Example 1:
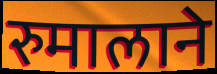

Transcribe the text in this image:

रुमालाने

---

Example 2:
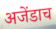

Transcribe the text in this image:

अजेंडाच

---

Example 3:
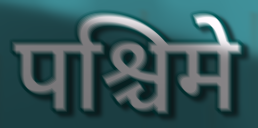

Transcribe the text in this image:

पश्चिमे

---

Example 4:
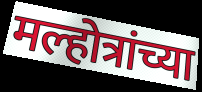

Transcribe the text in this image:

मल्होत्रांच्या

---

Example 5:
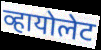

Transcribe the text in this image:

व्हायोलेट